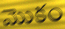
మొకం